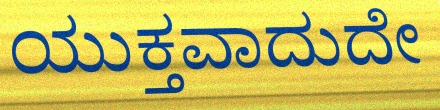
ಯುಕ್ತವಾದುದೇ